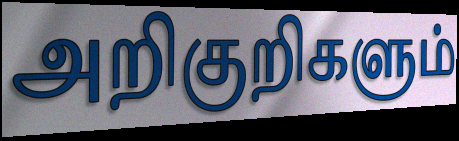
அறிகுறிகளும்